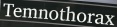
Temnothorax